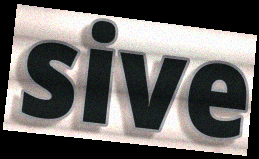
sive